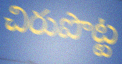
చిరుపొట్ట